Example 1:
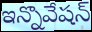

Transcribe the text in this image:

ఇన్నొవేషన్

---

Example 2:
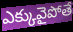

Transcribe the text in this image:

ఎక్కువైపోతే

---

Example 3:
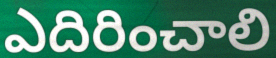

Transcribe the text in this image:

ఎదిరించాలి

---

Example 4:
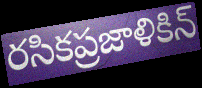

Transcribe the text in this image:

రసికప్రజాళికిన్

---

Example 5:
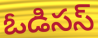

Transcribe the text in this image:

ఓడిసస్